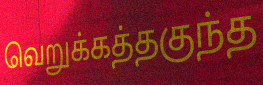
வெறுக்கத்தகுந்த